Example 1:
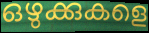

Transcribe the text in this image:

ഒഴുക്കുകളെ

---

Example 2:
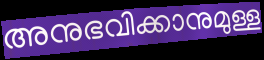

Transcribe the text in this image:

അനുഭവിക്കാനുമുള്ള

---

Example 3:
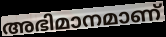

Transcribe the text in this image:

അഭിമാനമാണ്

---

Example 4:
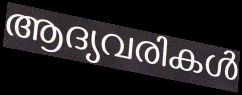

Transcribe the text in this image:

ആദ്യവരികൾ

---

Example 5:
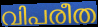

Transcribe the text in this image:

വിപരീത